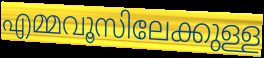
എമ്മവൂസിലേക്കുള്ള